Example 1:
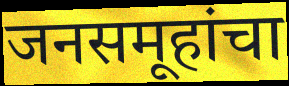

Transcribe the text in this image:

जनसमूहांचा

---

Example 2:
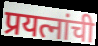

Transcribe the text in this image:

प्रयत्नांची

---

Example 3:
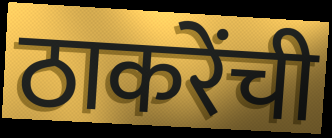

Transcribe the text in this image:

ठाकरेंची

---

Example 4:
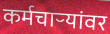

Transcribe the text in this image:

कर्मचाऱ्यांवर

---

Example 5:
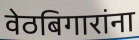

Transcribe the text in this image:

वेठबिगारांना